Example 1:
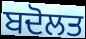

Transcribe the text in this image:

ਬਦੋਲਤ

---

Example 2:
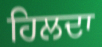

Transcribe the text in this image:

ਹਿਲਦਾ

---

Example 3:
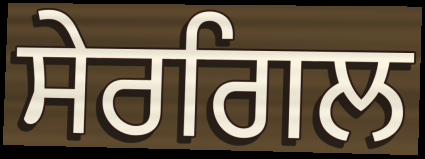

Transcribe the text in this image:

ਸੇਰਗਿਲ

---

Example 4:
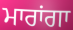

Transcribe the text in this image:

ਮਾਰਾਂਗਾ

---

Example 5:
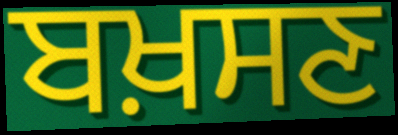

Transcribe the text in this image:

ਬਖ਼ਸਣ